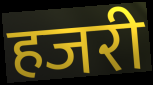
हजरी